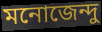
মনোজেন্দু